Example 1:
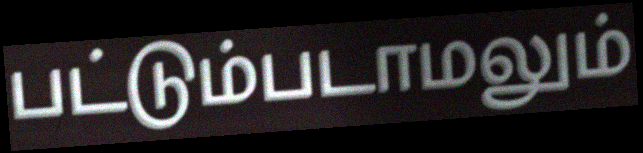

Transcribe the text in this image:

பட்டும்படாமலும்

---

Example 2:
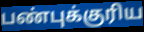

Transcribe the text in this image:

பண்புக்குரிய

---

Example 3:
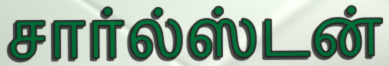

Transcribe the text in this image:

சார்ல்ஸ்டன்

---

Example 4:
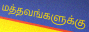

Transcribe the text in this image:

மத்தவங்களுக்கு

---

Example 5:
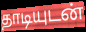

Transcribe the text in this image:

தாடியுடன்